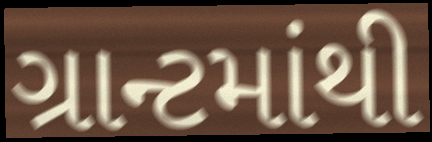
ગ્રાન્ટમાંથી